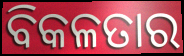
ବିକଳତାର